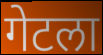
गेटला